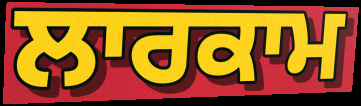
ਲਾਰਕਾਮ